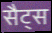
सैट्स